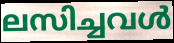
ലസിച്ചവൾ